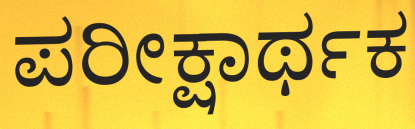
ಪರೀಕ್ಷಾರ್ಥಕ